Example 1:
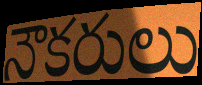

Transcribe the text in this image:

నౌకరులు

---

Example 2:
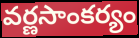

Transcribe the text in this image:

వర్ణసాంకర్యం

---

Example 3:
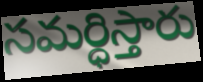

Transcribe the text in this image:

సమర్ధిస్తారు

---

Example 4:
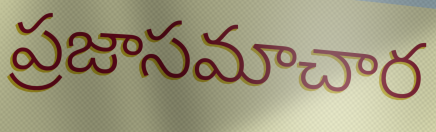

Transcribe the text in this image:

ప్రజాసమాచార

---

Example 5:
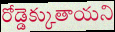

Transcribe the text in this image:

రోడ్డెక్కుతాయని